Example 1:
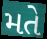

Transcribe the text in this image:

મતે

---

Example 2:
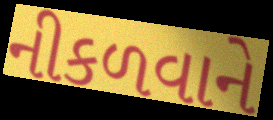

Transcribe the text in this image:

નીકળવાને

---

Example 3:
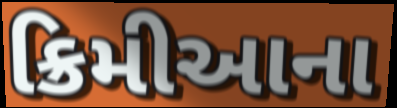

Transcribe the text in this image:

ક્રિમીઆના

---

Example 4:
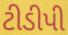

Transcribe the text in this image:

ટીડીપી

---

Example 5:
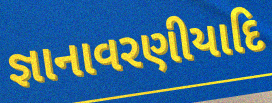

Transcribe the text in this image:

જ્ઞાનાવરણીયાદિ